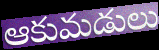
ఆకుమడులు